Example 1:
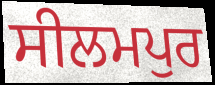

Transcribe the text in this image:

ਸੀਲਮਪੁਰ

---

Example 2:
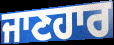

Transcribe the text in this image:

ਜਾਣਹਾਰ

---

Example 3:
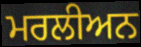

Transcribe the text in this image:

ਮਰਲੀਅਨ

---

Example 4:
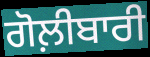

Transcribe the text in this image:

ਗੋਲ਼ੀਬਾਰੀ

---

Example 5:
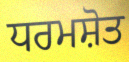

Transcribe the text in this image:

ਧਰਮਸ਼ੋਤ